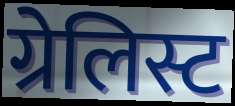
ग्रेलिस्ट